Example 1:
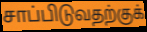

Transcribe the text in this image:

சாப்பிடுவதற்குக்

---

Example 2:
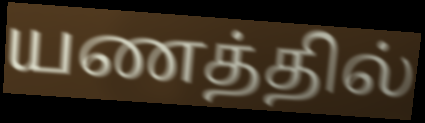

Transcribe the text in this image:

யணத்தில்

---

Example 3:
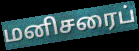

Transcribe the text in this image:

மனிசரைப்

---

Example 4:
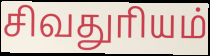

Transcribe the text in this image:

சிவதுரியம்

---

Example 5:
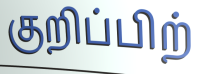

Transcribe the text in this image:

குறிப்பிற்